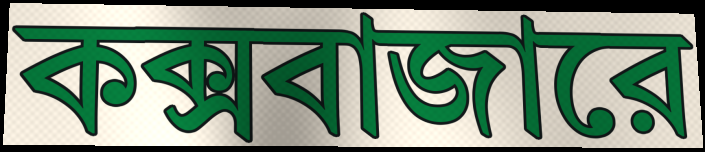
কক্সবাজারে